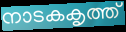
നാടകകൃത്ത്